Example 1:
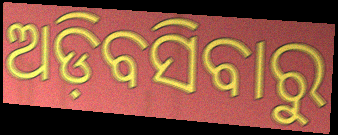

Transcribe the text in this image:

ଅଡ଼ିବସିବାରୁ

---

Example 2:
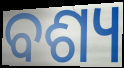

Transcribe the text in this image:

ବଶ୍ୟ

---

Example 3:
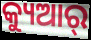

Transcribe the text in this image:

କ୍ୟୁଆର୍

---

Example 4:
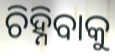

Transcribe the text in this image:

ଚିହ୍ନିବାକୁ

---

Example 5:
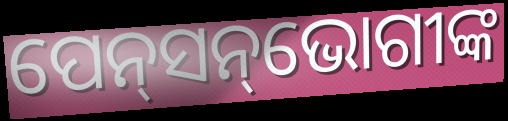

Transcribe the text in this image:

ପେନ୍‌ସନ୍‌ଭୋଗୀଙ୍କ